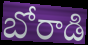
బోరాడి